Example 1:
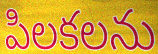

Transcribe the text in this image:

పిలకలను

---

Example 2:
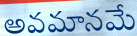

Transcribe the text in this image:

అవమానమే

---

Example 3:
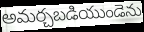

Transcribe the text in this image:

అమర్చబడియుండెను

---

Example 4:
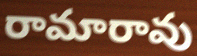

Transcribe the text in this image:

రామారావు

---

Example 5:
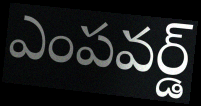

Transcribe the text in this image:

ఎంపవర్డ్